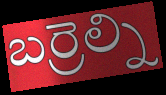
బర్రెల్ని